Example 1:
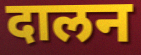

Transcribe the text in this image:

दालन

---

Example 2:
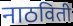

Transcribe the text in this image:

नाठविती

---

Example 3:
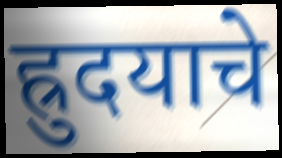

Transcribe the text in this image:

ह्रुदयाचे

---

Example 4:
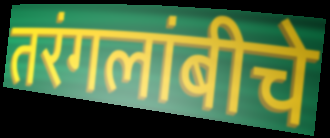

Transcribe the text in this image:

तरंगलांबीचे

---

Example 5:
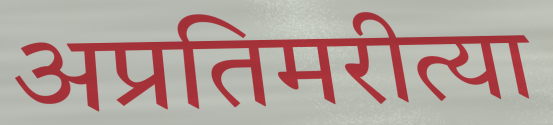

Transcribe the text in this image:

अप्रतिमरीत्या